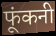
फूंकनी